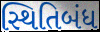
સ્થિતિબંધ